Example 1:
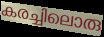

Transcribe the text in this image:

കരച്ചിലൊരു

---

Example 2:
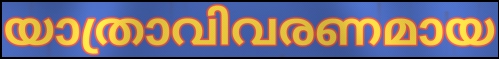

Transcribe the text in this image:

യാത്രാവിവരണമായ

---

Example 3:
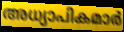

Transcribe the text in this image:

അധ്യാപികമാർ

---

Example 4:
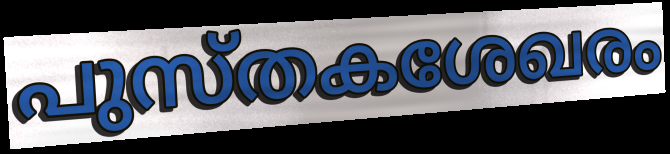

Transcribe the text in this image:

പുസ്തകശേഖരം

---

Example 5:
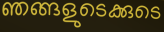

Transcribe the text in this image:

ഞങ്ങളുടെക്കുടെ